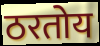
ठरतोय